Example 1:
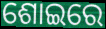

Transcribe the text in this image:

ଶୋଇରେ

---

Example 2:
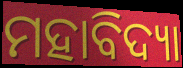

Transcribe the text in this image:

ମହାବିଦ୍ୟା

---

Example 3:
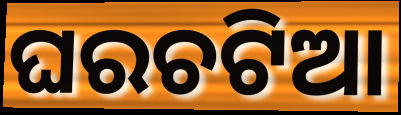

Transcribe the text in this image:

ଘରଚଟିଆ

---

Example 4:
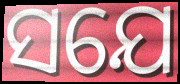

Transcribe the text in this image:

ସଯେ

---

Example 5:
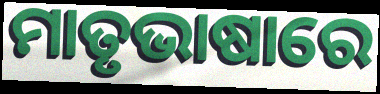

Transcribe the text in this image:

ମାତୃଭାଷାରେ